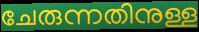
ചേരുന്നതിനുള്ള